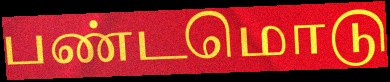
பண்டமொடு